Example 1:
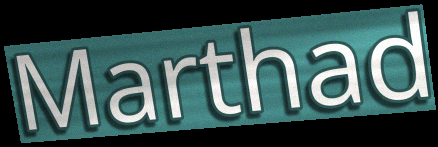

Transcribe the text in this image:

Marthad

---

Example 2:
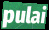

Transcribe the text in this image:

pulai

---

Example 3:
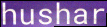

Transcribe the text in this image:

hushar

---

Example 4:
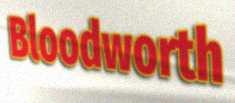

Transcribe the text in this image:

Bloodworth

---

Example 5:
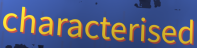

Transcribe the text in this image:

characterised